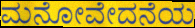
ಮನೋವೇದನೆಯ